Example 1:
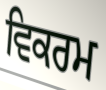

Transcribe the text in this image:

ਵਿਕਰਮ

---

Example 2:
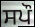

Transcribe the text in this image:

ਸਪੌ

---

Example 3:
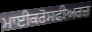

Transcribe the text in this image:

ਮਾਈਕਰੋਸਫੀਅਰਜ਼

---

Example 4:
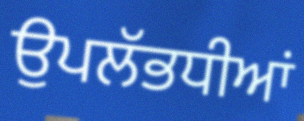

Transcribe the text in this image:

ਉਪਲੱਭਧੀਆਂ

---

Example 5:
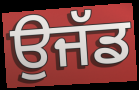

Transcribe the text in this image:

ਉਜੱਡ